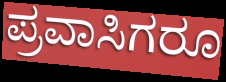
ಪ್ರವಾಸಿಗರೂ